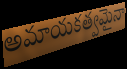
అమాయకత్వమైనా